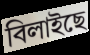
বিলাইছে